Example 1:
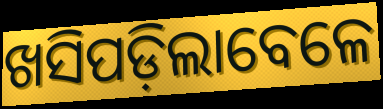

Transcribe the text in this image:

ଖସିପଡ଼ିଲାବେଳେ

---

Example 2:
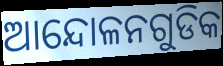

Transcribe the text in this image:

ଆନ୍ଦୋଳନଗୁଡିକ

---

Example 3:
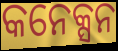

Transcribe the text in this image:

କନେକ୍ସନ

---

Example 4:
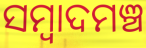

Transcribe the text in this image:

ସମ୍ୱାଦମଞ୍ଚ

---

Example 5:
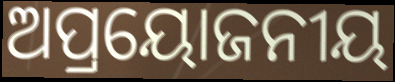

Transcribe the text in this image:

ଅପ୍ରୟୋଜନୀୟ